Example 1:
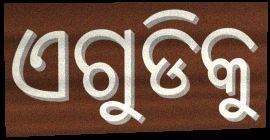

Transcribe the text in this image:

ଏଗୁଡିକୁ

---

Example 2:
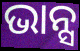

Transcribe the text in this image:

ଭାନ୍ସ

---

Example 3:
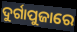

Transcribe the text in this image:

ଦୁର୍ଗାପୁଜାରେ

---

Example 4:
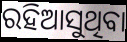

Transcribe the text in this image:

ରହିଆସୁଥିବା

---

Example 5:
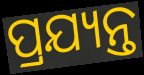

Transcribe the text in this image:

ପ୍ରଯ୍ୟନ୍ତ